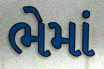
ભેમાં